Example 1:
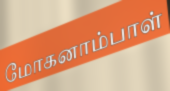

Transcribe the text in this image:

மோகனாம்பாள்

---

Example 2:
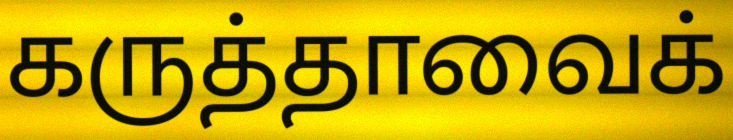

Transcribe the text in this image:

கருத்தாவைக்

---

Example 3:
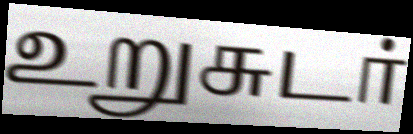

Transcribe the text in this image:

உறுசுடர்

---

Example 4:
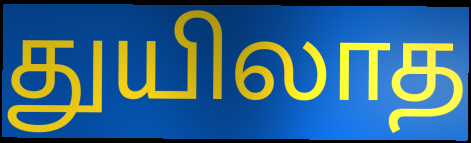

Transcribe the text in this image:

துயிலாத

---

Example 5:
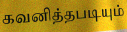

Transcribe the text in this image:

கவனித்தபடியும்